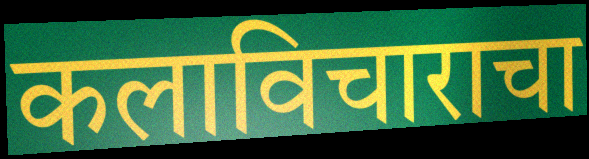
कलाविचाराचा